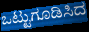
ಒಟ್ಟುಗೂಡಿಸಿದ